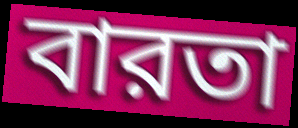
বারতা